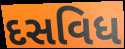
દસવિધ